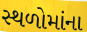
સ્થળોમાંના